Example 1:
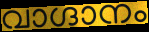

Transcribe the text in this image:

വാഗ്ദാനം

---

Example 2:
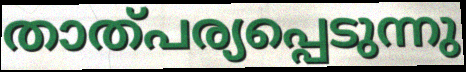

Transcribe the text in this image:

താത്പര്യപ്പെടുന്നു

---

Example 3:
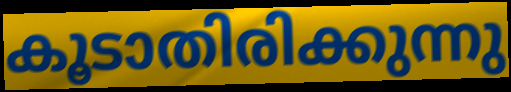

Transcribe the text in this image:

കൂടാതിരിക്കുന്നു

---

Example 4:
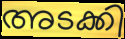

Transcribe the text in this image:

അടക്കി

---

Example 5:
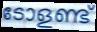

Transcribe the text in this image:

ടോളണ്ട്